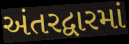
અંતરદ્વારમાં